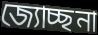
জ্যোচ্ছনা